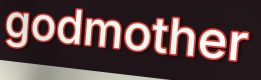
godmother